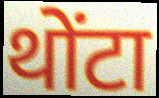
थोंटा